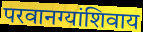
परवानग्यांशिवाय